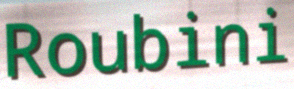
Roubini